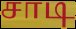
சாடி